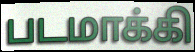
படமாக்கி